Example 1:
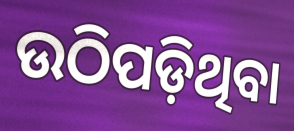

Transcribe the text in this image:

ଉଠିପଡ଼ିଥିବା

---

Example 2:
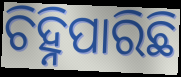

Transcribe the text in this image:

ଚିହ୍ନିପାରିଛି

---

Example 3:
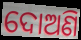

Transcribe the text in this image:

ଦୋଅଣି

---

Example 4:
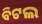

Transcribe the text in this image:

ବିଟଲ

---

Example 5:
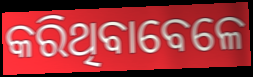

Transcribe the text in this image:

କରିଥିବାବେଳେ